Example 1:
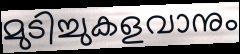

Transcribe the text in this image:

മുടിച്ചുകളവാനും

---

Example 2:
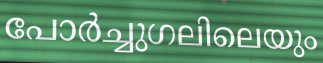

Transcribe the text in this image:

പോർച്ചുഗലിലെയും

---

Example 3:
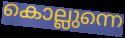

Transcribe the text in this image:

കൊല്ലുന്നെ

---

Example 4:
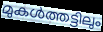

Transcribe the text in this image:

മുകൾത്തട്ടിലും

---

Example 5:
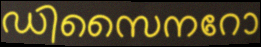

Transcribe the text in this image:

ഡിസൈനറോ